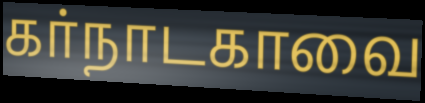
கர்நாடகாவை